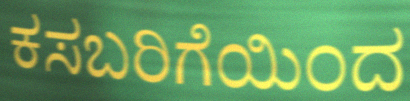
ಕಸಬರಿಗೆಯಿಂದ